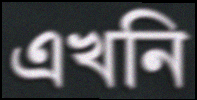
এখনি